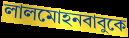
লালমোহনবাবুকে